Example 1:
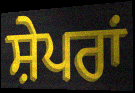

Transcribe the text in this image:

ਸ਼ੇਪਰਾਂ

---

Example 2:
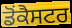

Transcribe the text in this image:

ਡੋਂਕੈਸਟਰ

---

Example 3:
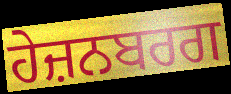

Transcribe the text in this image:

ਹੇਜ਼ਨਬਰਗ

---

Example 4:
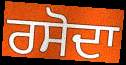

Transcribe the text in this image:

ਰਸੋਦਾ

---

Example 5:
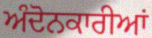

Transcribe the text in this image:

ਅੰਦੋਨਕਾਰੀਆਂ